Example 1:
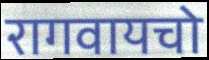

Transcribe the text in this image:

रागवायचो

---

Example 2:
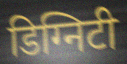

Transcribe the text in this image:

डिग्निटी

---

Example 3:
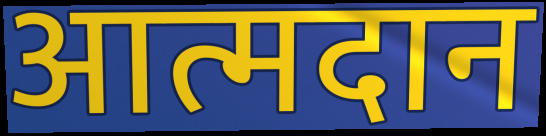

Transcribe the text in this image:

आत्मदान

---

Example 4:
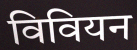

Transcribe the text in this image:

विवियन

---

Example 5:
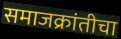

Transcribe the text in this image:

समाजक्रांतीचा